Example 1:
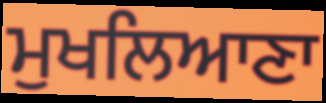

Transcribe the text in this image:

ਮੁਖਲਿਆਣਾ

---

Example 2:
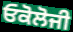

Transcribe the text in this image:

ਓਕੋਲੋਜੀ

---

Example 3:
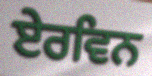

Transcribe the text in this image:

ਏਰਵਿਨ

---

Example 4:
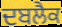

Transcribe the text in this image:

ਦਬਲੈਕ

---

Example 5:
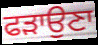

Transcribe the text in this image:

ਫੜਾਉਣਾ